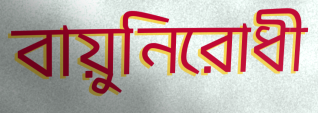
বায়ুনিরোধী